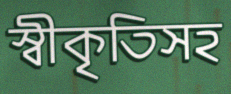
স্বীকৃতিসহ